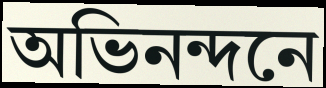
অভিনন্দনে